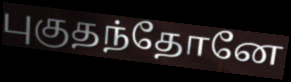
புகுதந்தோனே